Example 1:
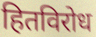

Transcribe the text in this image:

हितविरोध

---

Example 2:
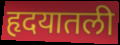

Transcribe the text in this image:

हृदयातली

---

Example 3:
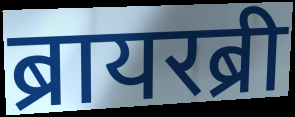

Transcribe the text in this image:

ब्रायरब्री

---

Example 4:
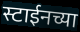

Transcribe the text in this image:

स्टाईनच्या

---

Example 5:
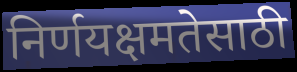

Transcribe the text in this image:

निर्णयक्षमतेसाठी